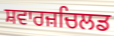
ਸ਼ਵਾਰਜ਼ਚਿਲਡ